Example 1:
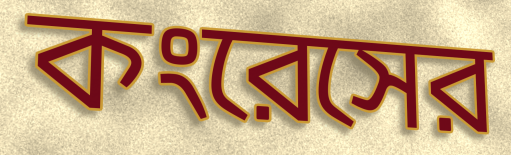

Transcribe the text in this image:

কংরেসের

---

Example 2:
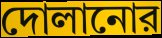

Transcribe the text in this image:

দোলানোর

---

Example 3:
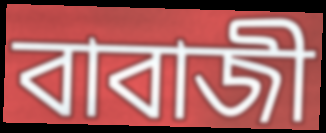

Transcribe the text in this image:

বাবাজী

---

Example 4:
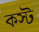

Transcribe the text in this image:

কস্ট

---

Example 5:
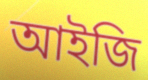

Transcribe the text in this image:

আইজি